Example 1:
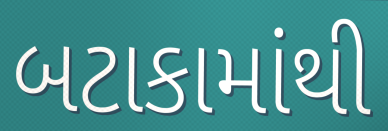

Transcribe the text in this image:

બટાકામાંથી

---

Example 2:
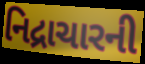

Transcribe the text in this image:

નિદ્રાચારની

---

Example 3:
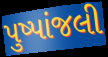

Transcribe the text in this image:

પુષ્પાંજલી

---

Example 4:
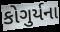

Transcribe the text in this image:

કોગુર્યના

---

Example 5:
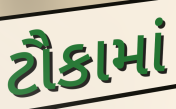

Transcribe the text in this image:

ટૌકામાં